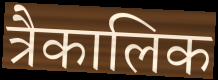
त्रैकालिक